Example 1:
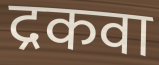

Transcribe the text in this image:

द्रकवा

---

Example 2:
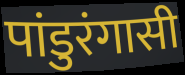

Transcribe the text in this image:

पांडुरंगासी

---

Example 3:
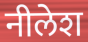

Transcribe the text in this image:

नीलेश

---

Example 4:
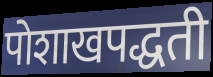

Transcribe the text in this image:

पोशाखपद्धती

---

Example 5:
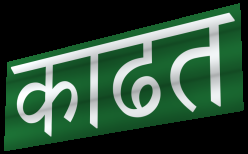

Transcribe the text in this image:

काढत